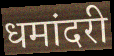
धमांदरी